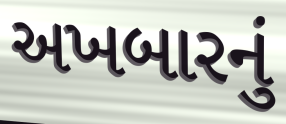
અખબારનું